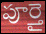
పూర్తై